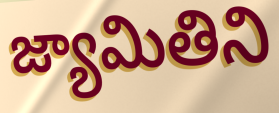
జ్యామితిని